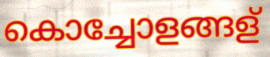
കൊച്ചോളങ്ങള്